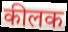
कीलक